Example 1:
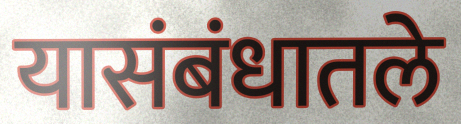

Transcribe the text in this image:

यासंबंधातले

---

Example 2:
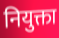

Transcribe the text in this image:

नियुक्ता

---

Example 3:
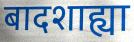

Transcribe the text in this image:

बादशाह्या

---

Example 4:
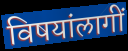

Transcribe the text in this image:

विषयांलागीं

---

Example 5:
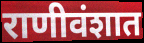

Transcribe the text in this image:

राणीवंशात